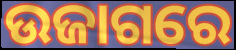
ଉଜାଗରେ